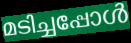
മടിച്ചപ്പോൾ